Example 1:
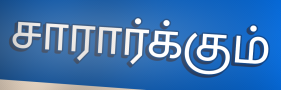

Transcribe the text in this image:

சாரார்க்கும்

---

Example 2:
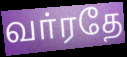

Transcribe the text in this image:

வர்ரதே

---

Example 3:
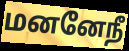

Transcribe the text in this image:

மனனேநீ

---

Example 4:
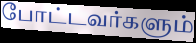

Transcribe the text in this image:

போட்டவர்களும்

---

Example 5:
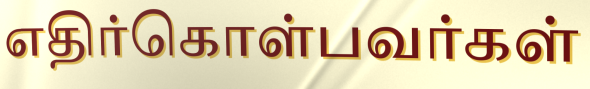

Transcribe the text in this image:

எதிர்கொள்பவர்கள்